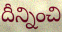
దీన్నించి